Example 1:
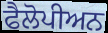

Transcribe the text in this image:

ਫੈਲੋਪੀਅਨ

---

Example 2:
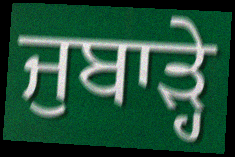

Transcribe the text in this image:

ਜੁਬਾੜ੍ਹੇ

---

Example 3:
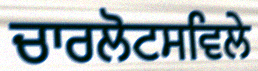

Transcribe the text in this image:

ਚਾਰਲੋਟਸਵਿਲੇ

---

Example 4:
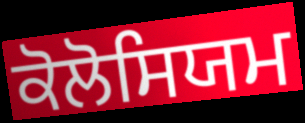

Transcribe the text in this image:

ਕੋਲੋਸਿਯਮ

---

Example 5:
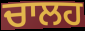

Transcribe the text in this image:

ਚਾਲਹ